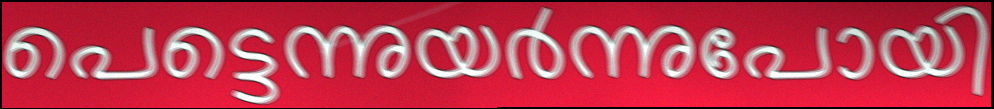
പെട്ടെന്നുയർന്നുപോയി